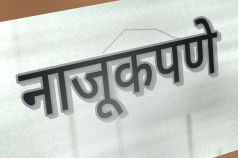
नाजूकपणे